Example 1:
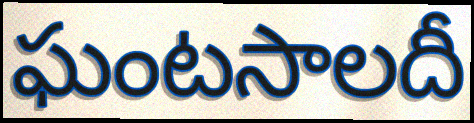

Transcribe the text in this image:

ఘంటసాలదీ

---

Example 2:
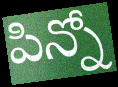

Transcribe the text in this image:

పిన్నో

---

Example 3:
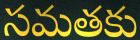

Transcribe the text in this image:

సమతకు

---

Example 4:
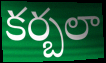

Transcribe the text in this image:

కర్బలా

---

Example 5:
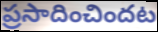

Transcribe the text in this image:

ప్రసాదించిందట